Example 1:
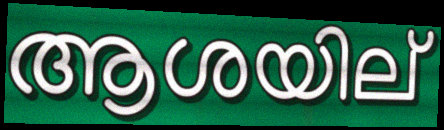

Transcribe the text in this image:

ആശയില്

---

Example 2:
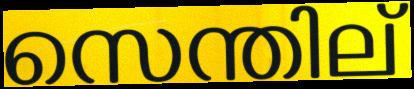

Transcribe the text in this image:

സെന്തില്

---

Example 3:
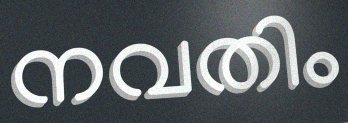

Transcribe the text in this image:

നവതിം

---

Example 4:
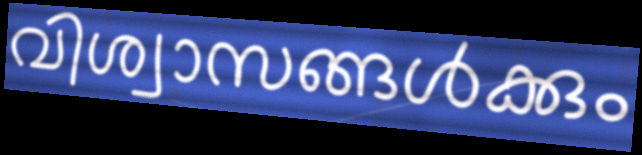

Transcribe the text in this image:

വിശ്വാസങ്ങൾക്കും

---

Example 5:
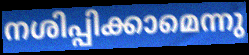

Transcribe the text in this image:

നശിപ്പിക്കാമെന്നു